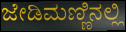
ಜೇಡಿಮಣ್ಣಿನಲ್ಲಿ